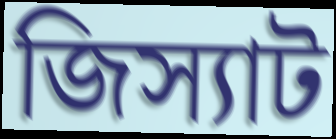
জিস্যাট